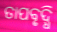
ତାପବୃଦ୍ଧି